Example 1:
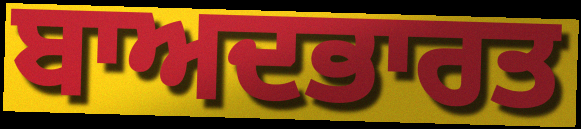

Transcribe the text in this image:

ਬਾਅਦਭਾਰਤ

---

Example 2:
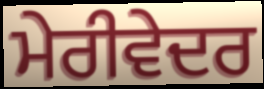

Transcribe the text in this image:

ਮੇਰੀਵੇਦਰ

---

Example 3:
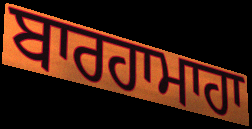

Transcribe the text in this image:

ਬਾਰਹਾਮਾਹਾ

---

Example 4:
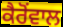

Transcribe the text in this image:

ਕੈਰੋਂਵਾਲ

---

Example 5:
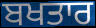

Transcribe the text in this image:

ਬਖਤਾਰ